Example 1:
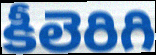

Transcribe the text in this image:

కీలెరిగి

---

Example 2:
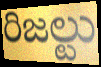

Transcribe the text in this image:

రిజల్టు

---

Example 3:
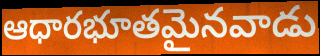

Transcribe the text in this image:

ఆధారభూతమైనవాడు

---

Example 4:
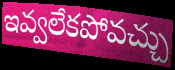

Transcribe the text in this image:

ఇవ్వలేకపోవచ్చు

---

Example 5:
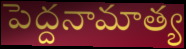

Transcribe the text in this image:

పెద్దనామాత్య